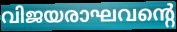
വിജയരാഘവന്റെ